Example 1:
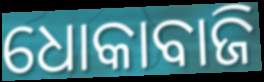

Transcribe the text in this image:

ଧୋକାବାଜି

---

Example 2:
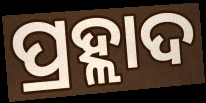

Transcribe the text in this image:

ପ୍ରହ୍ଲାଦ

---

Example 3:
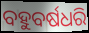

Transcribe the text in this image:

ବହୁବର୍ଷଧରି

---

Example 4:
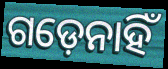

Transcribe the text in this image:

ଗଡ଼େନାହିଁ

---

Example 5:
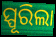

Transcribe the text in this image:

ସ୍ପୂରିଲା